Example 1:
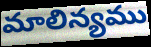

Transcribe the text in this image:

మాలిన్యము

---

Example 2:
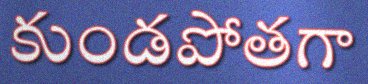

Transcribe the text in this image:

కుండపోతగా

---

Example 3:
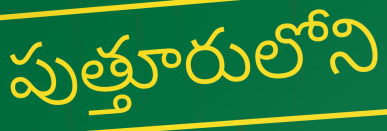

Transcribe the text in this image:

పుత్తూరులోని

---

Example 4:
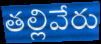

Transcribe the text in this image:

తల్లివేరు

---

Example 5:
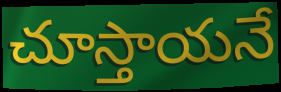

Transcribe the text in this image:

చూస్తాయనే